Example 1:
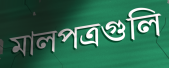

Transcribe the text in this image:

মালপত্রগুলি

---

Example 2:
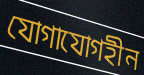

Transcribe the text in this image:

যোগাযোগহীন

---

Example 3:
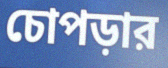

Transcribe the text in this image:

চোপড়ার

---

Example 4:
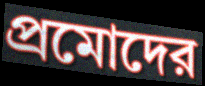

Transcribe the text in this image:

প্রমোদের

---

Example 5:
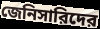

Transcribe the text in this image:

জেনিসারিদের